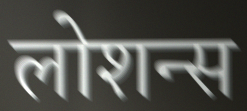
लोशन्स